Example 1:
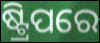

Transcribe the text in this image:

ଷ୍ଟ୍ରିପରେ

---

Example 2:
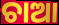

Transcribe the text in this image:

ଚାଆ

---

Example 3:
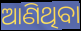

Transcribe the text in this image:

ଆଣିଥିବା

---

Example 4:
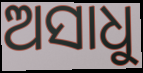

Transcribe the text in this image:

ଅସାଧୁ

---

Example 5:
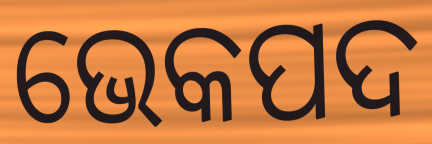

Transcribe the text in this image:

ଭେକପଦ